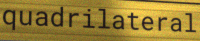
quadrilateral